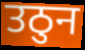
उठुन